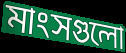
মাংসগুলো